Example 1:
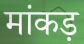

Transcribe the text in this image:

मांकड़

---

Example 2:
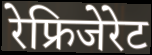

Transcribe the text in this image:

रेफ्रिजेरेट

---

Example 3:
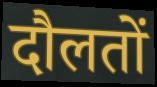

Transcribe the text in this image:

दौलतों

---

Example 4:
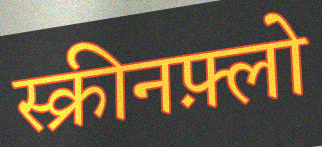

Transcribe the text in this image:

स्क्रीनफ़्लो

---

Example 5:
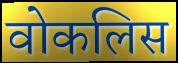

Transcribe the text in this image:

वोकलिस